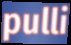
pulli